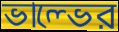
ভাল্ভের